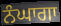
ਨੰਘਾਗਾ